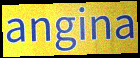
angina